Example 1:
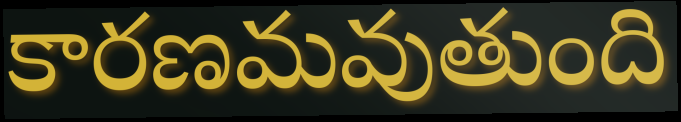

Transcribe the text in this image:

కారణమవుతుంది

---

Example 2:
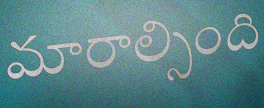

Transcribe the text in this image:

మారాల్సింది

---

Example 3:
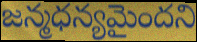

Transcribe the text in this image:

జన్మధన్యమైందని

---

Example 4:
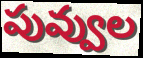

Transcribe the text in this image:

పువ్వుల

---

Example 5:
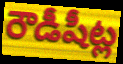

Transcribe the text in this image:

రౌడీషీట్ల